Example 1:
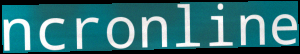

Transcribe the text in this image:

ncronline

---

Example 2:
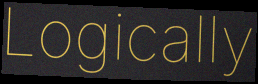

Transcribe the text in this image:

Logically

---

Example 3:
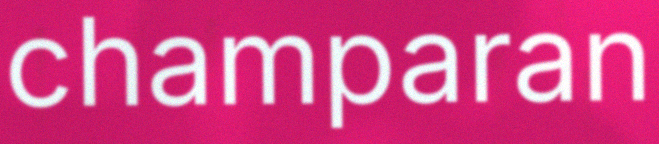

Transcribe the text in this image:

champaran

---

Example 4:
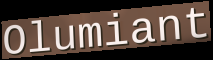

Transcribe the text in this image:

Olumiant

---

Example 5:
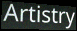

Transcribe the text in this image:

Artistry